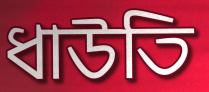
ধাউতি